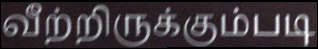
வீற்றிருக்கும்படி